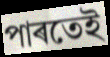
পাৰতেই